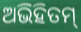
ଅଭିହିତମ୍